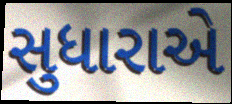
સુધારાએ